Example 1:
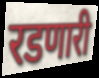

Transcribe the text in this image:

रडणारी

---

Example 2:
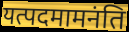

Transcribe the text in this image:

यत्पदमामनंति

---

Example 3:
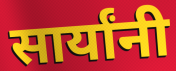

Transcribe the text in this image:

सार्यांनी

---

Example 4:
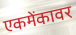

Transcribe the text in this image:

एकमेंकावर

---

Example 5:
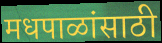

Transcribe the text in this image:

मधपाळांसाठी